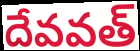
దేవవత్